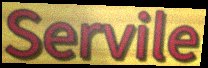
Servile